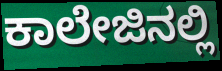
ಕಾಲೇಜಿನಲ್ಲಿ